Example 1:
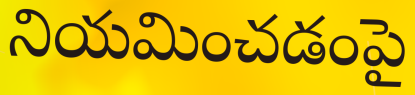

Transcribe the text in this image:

నియమించడంపై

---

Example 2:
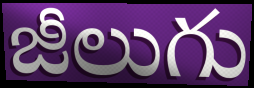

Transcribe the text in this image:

జీలుగు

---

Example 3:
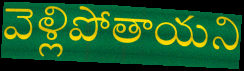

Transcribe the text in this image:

వెళ్లిపోతాయని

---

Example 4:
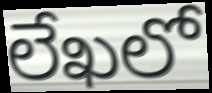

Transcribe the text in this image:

లేఖలో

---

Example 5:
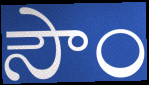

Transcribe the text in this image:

సౌం